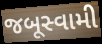
જબૂસ્વામી